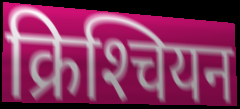
क्रिश्‍चियन